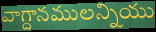
వాగ్దానములన్నియు